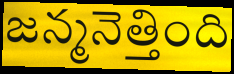
జన్మనెత్తింది